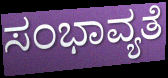
ಸಂಭಾವ್ಯತೆ